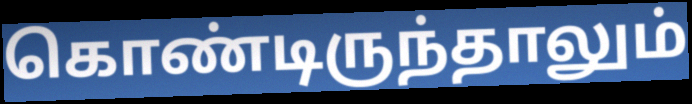
கொண்டிருந்தாலும்